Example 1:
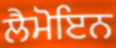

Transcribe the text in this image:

ਲੈਮੋਇਨ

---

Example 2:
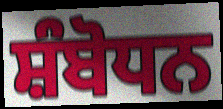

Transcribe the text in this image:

ਸ਼ੰਬੋਧਨ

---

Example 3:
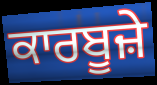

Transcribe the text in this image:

ਕਾਰਬੂਜ਼ੇ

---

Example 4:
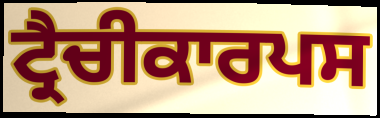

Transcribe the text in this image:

ਟ੍ਰੈਚੀਕਾਰਪਸ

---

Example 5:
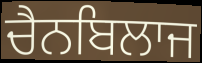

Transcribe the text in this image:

ਚੈਨਬਿਲਾਜ